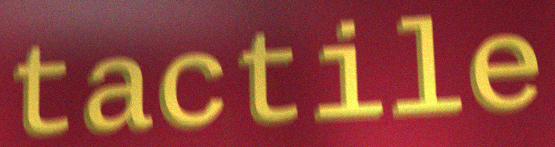
tactile